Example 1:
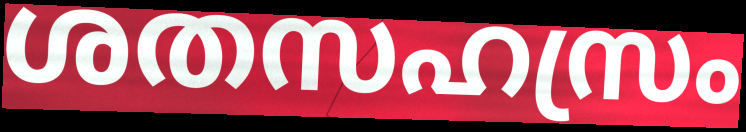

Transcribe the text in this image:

ശതസഹസ്രം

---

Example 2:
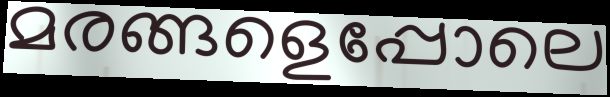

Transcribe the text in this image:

മരങ്ങളെപ്പോലെ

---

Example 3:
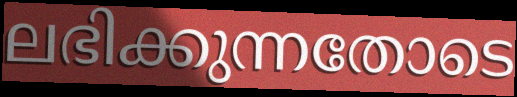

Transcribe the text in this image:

ലഭിക്കുന്നതോടെ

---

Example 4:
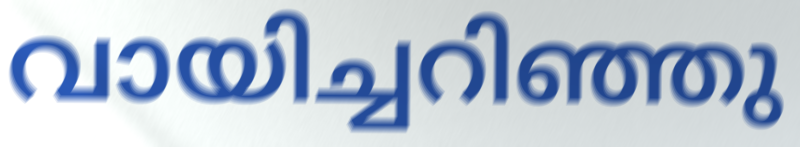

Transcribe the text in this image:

വായിച്ചറിഞ്ഞു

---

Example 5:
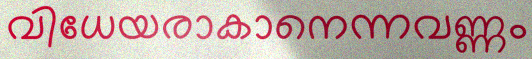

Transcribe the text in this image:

വിധേയരാകാനെന്നവണ്ണം